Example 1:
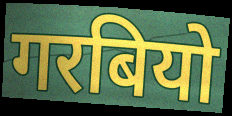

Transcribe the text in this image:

गरबियो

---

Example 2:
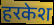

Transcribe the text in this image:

हरकेश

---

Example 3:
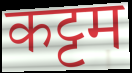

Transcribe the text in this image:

कट्टम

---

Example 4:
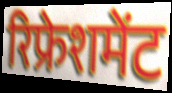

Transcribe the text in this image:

रिफ्रेशमेंट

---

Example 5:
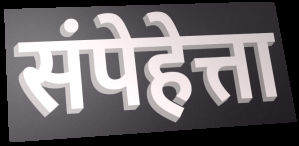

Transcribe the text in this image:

संपेहेत्ता